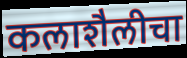
कलाशैलीचा